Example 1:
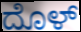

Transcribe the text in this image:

ದೊಳ್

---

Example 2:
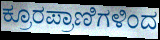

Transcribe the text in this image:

ಕ್ರೂರಪ್ರಾಣಿಗಳಿಂದ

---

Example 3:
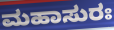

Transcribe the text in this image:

ಮಹಾಸುರಃ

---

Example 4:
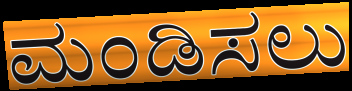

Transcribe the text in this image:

ಮಂಡಿಸಲು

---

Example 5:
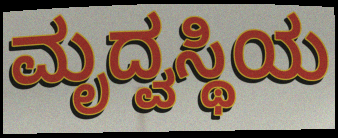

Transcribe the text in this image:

ಮೃದ್ವಸ್ಥಿಯ